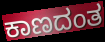
ಕಾಣದಂತ